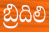
బ్రిదిలి